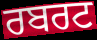
ਰਬਰਟ